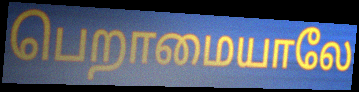
பெறாமையாலே